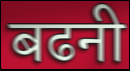
बढनी